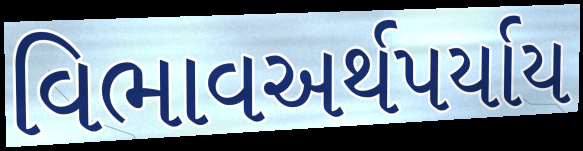
વિભાવઅર્થપર્યાય